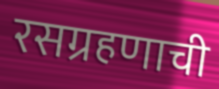
रसग्रहणाची